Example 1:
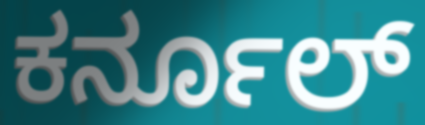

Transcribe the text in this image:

ಕರ್ನೂಲ್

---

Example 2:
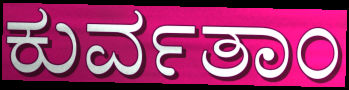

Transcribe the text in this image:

ಕುರ್ವತಾಂ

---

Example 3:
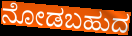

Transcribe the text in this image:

ನೋಡಬಹುದ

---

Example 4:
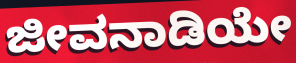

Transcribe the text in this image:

ಜೀವನಾಡಿಯೇ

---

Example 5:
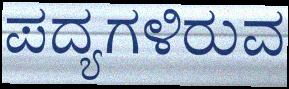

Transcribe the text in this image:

ಪದ್ಯಗಳಿರುವ